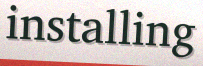
installing